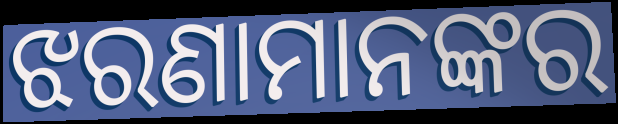
ଝରଣାମାନଙ୍କର